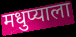
मधुप्याला